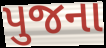
પુજના